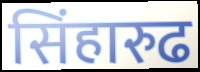
सिंहारुढ